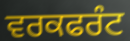
ਵਰਕਫਰੰਟ